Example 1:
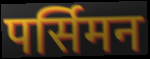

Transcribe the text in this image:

पर्सिमन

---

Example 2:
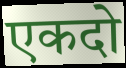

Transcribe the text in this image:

एकदो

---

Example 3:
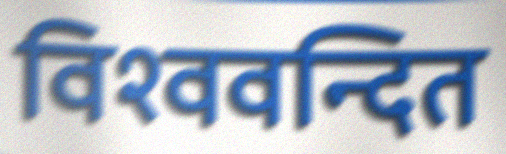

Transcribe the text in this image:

विश्ववन्दित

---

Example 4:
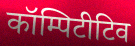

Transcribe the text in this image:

कॉम्पिटीटिव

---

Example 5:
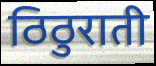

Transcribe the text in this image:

ठिठुराती